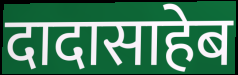
दादासाहेब